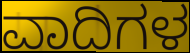
ವಾದಿಗಳ